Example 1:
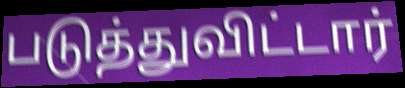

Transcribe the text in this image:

படுத்துவிட்டார்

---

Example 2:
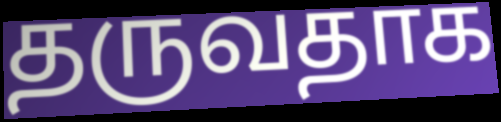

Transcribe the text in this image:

தருவதாக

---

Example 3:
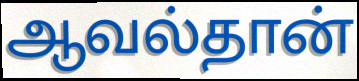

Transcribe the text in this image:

ஆவல்தான்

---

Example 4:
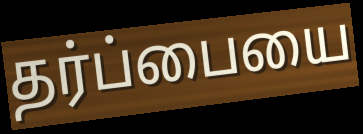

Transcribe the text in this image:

தர்ப்பையை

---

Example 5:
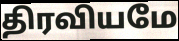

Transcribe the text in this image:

திரவியமே